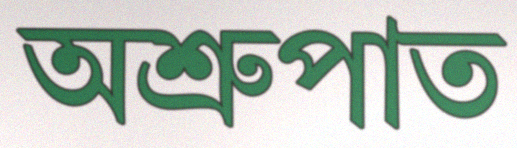
অশ্রুপাত